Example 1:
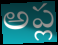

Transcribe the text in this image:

అప్ల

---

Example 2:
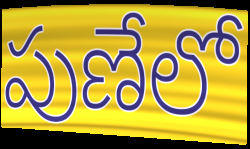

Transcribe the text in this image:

పుణేలో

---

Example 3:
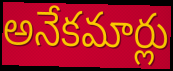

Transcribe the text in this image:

అనేకమార్లు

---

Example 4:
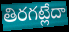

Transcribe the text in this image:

తిరగట్లేదా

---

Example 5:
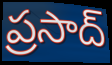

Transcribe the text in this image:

ప్రసాద్